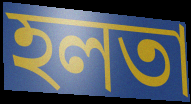
হলতা